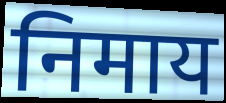
निमाय